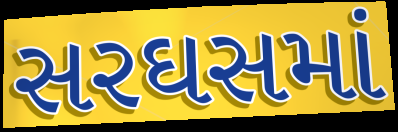
સરઘસમાં